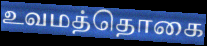
உவமத்தொகை